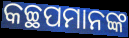
କଚ୍ଛପମାନଙ୍କ